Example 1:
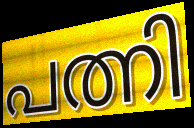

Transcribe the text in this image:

പത്നി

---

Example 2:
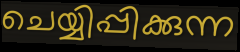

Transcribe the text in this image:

ചെയ്യിപ്പിക്കുന്ന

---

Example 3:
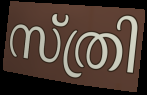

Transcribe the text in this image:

സ്ത്രി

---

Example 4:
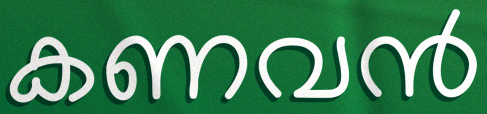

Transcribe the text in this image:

കണവൻ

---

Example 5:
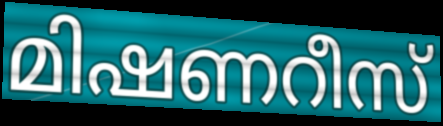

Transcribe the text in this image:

മിഷണറീസ്